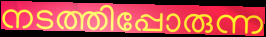
നടത്തിപ്പോരുന്ന